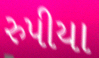
રુપીયા